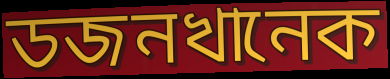
ডজনখানেক